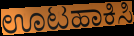
ಊಟಹಾಕಿಸಿ